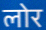
लोर